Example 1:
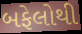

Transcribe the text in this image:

બફેલોથી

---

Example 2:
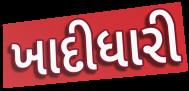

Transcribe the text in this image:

ખાદીધારી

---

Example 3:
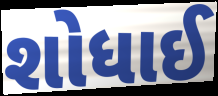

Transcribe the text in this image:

શોધાઈ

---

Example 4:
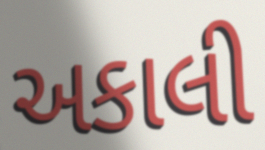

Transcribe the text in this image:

અકાલી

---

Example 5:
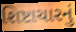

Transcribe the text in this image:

શિષ્ટાચારનું